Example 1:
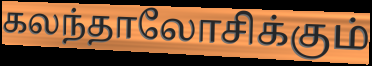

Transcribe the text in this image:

கலந்தாலோசிக்கும்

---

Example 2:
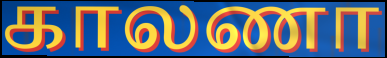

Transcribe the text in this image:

காலணா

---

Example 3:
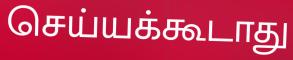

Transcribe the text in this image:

செய்யக்கூடாது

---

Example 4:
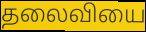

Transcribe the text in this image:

தலைவியை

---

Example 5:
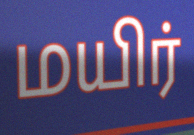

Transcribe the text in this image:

மயிர்